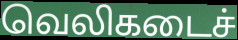
வெலிகடைச்